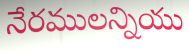
నేరములన్నియు